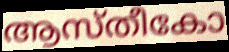
ആസ്തീകോ